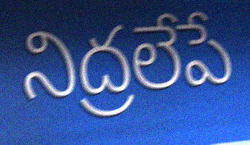
నిద్రలేపే